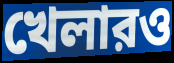
খেলারও